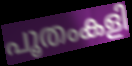
പൂതംകളി